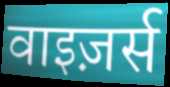
वाइज़र्स